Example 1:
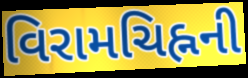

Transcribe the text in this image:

વિરામચિહ્નની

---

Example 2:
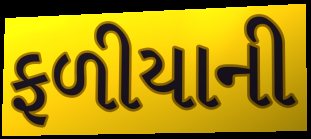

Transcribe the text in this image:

ફળીયાની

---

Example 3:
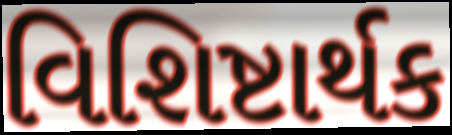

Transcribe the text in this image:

વિશિષ્ટાર્થક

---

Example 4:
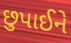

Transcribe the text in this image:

છુપાઈને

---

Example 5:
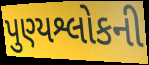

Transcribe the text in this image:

પુણ્યશ્લોકની